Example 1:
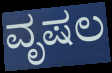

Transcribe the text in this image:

ವೃಷಲ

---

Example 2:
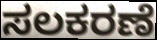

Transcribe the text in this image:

ಸಲಕರಣೆ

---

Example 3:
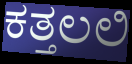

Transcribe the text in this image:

ಕತ್ತಲಲಿ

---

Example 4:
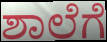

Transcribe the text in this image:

ಶಾಲೆಗೆ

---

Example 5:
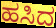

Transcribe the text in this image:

ಹಸಿದ